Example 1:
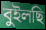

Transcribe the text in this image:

বুইলছি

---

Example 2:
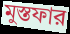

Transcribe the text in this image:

মুস্তফার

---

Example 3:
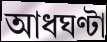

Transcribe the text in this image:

আধঘণ্টা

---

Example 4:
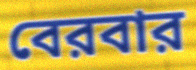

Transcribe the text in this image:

বেরবার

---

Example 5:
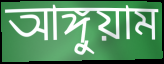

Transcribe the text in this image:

আঙ্গুয়াম